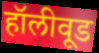
हॉलीवूड